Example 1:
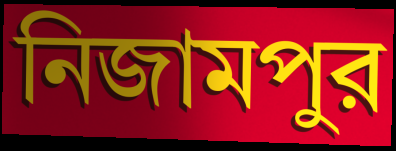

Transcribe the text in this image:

নিজামপুর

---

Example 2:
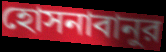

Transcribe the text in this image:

হোসনাবানুর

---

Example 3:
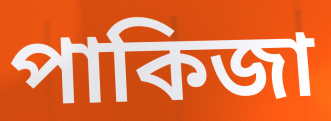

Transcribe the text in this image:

পাকিজা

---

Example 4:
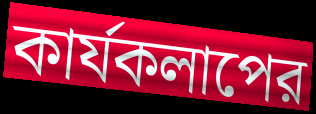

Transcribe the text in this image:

কার্যকলাপের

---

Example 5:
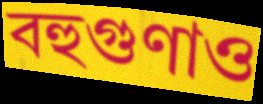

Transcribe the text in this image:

বহুগুণাও